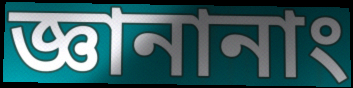
জ্ঞানানাং